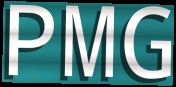
PMG